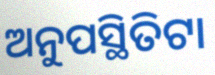
ଅନୁପସ୍ଥିତିଟା